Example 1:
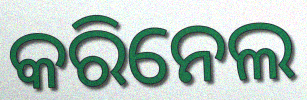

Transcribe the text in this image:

କରିନେଲ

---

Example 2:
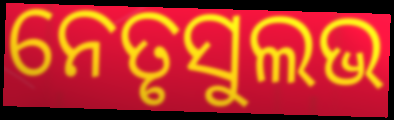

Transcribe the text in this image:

ନେତୃସୁଲଭ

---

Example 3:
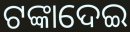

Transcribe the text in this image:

ଟଙ୍କାଦେଇ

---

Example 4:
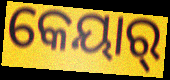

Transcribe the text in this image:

କେୟାର୍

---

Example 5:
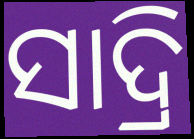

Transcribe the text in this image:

ସାଦ୍ରି